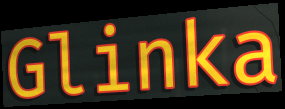
Glinka